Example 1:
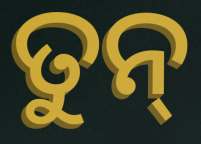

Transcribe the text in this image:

ତୁନ୍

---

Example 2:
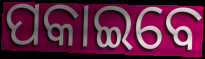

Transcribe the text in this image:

ପକାଇବେ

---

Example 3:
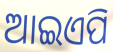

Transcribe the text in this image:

ଆଇଏପି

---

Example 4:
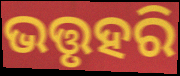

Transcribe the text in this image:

ଭତ୍ତୃହରି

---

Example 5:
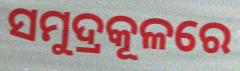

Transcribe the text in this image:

ସମୁଦ୍ରକୂଳରେ